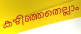
കഴിഞ്ഞതെല്ലാം